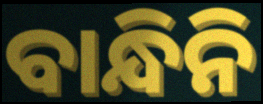
ବାନ୍ଧିନି